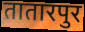
तातारपुर